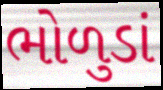
ભોળુડાં